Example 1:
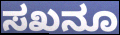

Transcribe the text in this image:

ಸಖನೂ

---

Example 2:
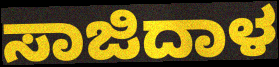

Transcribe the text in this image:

ಸಾಜಿದಾಳ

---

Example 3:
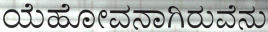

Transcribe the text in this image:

ಯೆಹೋವನಾಗಿರುವೆನು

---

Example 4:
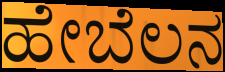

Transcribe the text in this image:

ಹೇಬೆಲನ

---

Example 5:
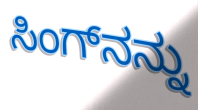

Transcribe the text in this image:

ಸಿಂಗ್‌ನನ್ನು